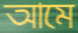
আমে